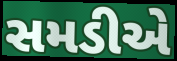
સમડીએ